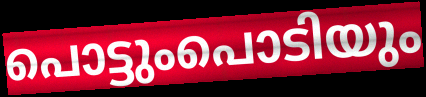
പൊട്ടുംപൊടിയും